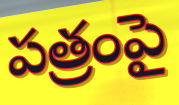
పత్రంపై